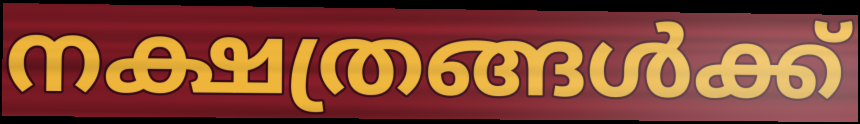
നക്ഷത്രങ്ങൾക്ക്